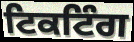
ਟਿਕਟਿੰਗ